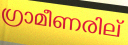
ഗ്രാമീണരില്